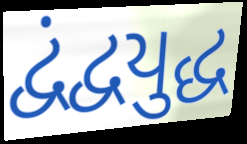
દ્વંદ્વયુદ્ધ